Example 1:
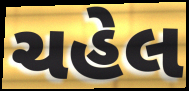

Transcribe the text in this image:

ચહેલ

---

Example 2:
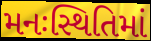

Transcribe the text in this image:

મનઃસ્થિતિમાં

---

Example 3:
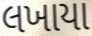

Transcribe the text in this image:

લખાયા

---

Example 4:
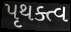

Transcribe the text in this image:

પૃથક્ત્વ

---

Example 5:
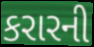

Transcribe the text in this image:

કરારની